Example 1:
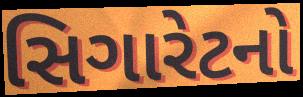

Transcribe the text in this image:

સિગારેટનો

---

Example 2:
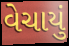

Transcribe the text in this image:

વેચાયું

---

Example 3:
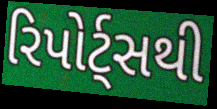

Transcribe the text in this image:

રિપોર્ટ્સથી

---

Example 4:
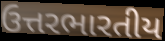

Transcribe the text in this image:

ઉત્તરભારતીય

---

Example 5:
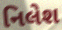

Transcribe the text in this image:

નિલેશ